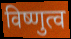
विष्णुत्व